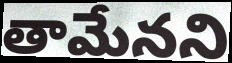
తామేనని